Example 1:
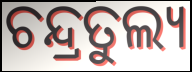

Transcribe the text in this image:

ଚନ୍ଦ୍ରତୁଲ୍ୟ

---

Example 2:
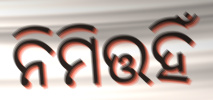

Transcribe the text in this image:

ନିମିତ୍ତହିଁ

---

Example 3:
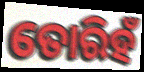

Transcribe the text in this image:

ତୋରିହଁ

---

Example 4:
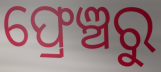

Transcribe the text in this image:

ଫ୍ରେଞ୍ଚରୁ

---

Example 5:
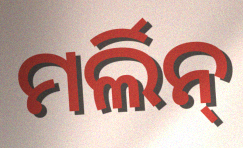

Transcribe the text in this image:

ମର୍ଲିନ୍